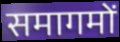
समागमों